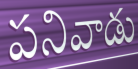
పనివాడు